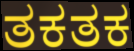
ತಕತಕ